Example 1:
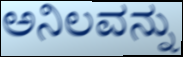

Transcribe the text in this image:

ಅನಿಲವನ್ನು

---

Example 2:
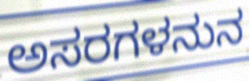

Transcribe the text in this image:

ಅಸರಗಳನುನ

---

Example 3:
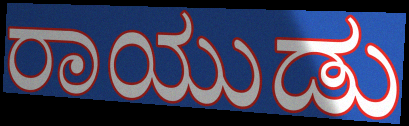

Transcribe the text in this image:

ರಾಯುಡು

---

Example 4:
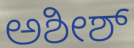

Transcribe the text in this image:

ಅಶೀಶ್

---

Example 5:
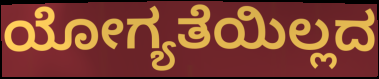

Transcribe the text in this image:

ಯೋಗ್ಯತೆಯಿಲ್ಲದ